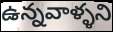
ఉన్నవాళ్ళని